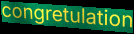
congretulation